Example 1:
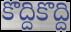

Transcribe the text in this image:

కొద్దికొద్ది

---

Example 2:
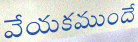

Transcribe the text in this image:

వేయకముందే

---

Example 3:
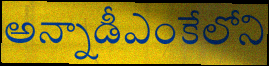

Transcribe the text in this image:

అన్నాడీఎంకేలోని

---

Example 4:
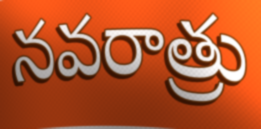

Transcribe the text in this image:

నవరాత్రు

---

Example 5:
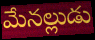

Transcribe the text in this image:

మేనల్లుడు